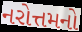
નરોત્તમનો